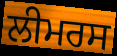
ਲੀਮਰਸ